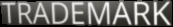
TRADEMARK